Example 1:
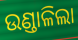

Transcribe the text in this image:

ଉଣ୍ଡାଳିଲା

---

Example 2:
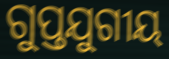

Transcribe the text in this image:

ଗୁପ୍ତଯୁଗୀୟ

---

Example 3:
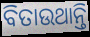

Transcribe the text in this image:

ବିତାଉଥାନ୍ତି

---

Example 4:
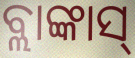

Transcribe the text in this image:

ବ୍ଲାଙ୍କାସ୍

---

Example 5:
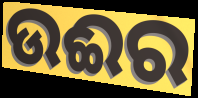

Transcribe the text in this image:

ଉଈର